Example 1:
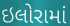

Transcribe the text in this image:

ઇલોરામાં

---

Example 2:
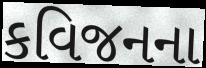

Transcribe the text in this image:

કવિજનના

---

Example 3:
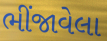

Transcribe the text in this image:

ભીંજાવેલા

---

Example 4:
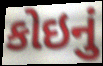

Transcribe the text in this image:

કોઇનું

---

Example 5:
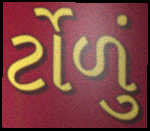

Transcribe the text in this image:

ર્ટોળું